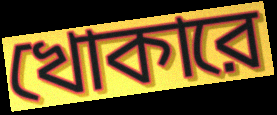
খোকারে